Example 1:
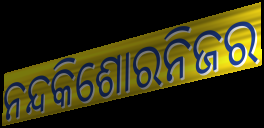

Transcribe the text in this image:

ନନ୍ଦକିଶୋରନିଜର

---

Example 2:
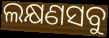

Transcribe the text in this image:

ଲକ୍ଷଣସବୁ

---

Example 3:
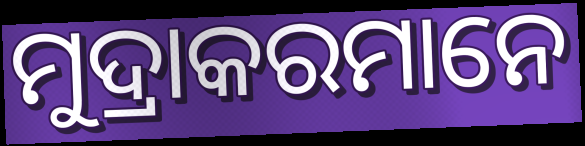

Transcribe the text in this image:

ମୁଦ୍ରାକରମାନେ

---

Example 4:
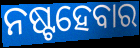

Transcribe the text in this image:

ନଷ୍ଟହେବାର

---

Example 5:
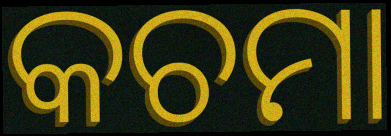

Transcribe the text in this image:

କଚମା